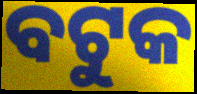
ବଟୁକ